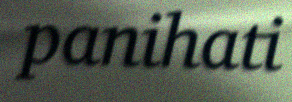
panihati